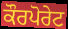
ਕੌਰਪੋਰੇਟ